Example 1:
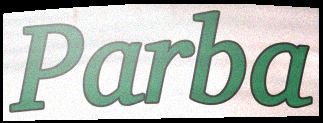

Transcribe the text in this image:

Parba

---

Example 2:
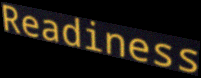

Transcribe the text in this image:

Readiness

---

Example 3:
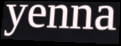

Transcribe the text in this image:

yenna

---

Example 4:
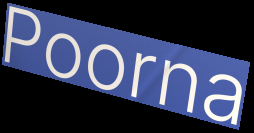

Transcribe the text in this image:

Poorna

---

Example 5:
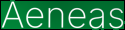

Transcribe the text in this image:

Aeneas